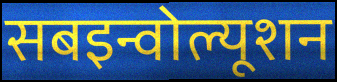
सबइन्वोल्यूशन